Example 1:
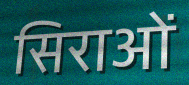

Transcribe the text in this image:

सिराओं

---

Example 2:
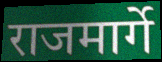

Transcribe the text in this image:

राजमार्गे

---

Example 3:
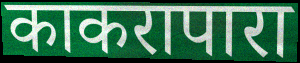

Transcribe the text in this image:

काकरापारा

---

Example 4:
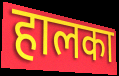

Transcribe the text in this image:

हालका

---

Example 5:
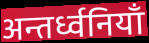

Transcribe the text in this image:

अन्तर्ध्वनियाँ